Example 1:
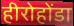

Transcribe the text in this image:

हीरोहोंडा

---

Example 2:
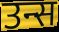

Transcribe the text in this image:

उन्स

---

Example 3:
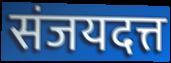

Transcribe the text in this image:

संजयदत्त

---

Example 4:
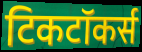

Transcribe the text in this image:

टिकटॉकर्स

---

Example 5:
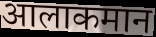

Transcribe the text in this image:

आलाकमान